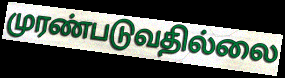
முரண்படுவதில்லை